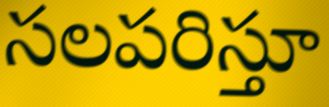
సలపరిస్తూ